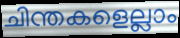
ചിന്തകളെല്ലാം